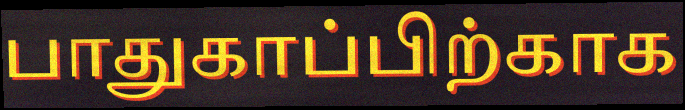
பாதுகாப்பிற்காக